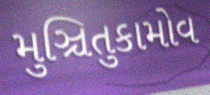
મુઞ્ચિતુકામોવ